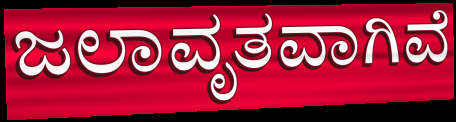
ಜಲಾವೃತವಾಗಿವೆ